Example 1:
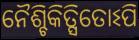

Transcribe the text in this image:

ନୈଶ୍ଚିକିତ୍ସିତୋଽପି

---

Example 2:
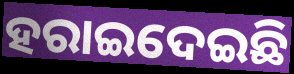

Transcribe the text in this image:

ହରାଇଦେଇଛି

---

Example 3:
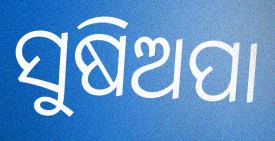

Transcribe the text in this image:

ସୁଷିଅପା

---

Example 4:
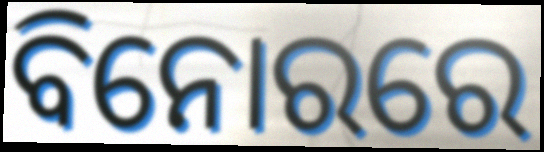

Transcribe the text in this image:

ବିନୋରରେ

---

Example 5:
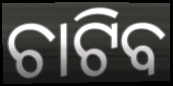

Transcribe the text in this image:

ଚାଟିବ